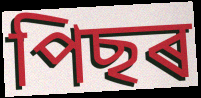
পিছৰ